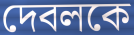
দেবলকে